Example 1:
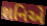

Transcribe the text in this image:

શનિએ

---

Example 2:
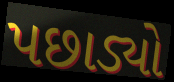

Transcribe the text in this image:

પછાડ્યો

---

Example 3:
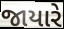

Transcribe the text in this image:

જાયારે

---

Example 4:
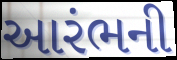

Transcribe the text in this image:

આરંભની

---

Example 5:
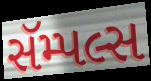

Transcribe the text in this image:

સૅમ્પલ્સ